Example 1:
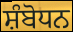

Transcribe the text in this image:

ਸ਼ੰਬੋਧਨ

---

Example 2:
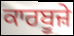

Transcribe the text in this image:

ਕਾਰਬੂਜ਼ੇ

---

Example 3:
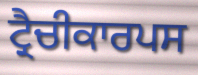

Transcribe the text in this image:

ਟ੍ਰੈਚੀਕਾਰਪਸ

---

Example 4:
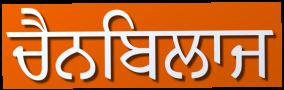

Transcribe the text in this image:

ਚੈਨਬਿਲਾਜ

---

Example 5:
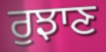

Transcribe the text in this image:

ਰੁਝਾਣ